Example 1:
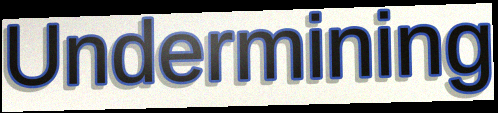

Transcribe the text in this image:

Undermining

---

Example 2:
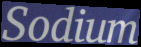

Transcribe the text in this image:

Sodium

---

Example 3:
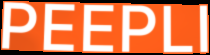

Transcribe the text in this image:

PEEPLI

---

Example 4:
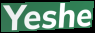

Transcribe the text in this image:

Yeshe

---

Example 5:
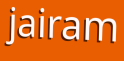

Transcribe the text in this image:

jairam